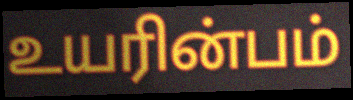
உயரின்பம்